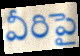
వీరిపై